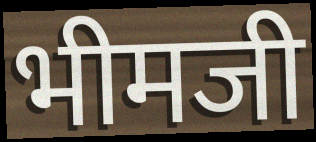
भीमजी